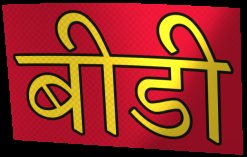
बीडी